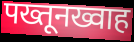
पख्तूनख्वाह